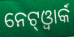
ନେଟ୍ଓ୍ବାର୍କ